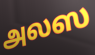
அலஸ